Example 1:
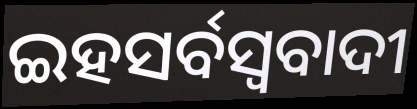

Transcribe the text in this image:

ଇହସର୍ବସ୍ୱବାଦୀ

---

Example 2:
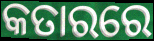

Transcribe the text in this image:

କତାରରେ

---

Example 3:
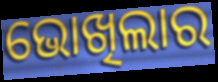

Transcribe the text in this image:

ଭୋଖିଲାର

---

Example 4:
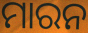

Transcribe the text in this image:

ମାରନ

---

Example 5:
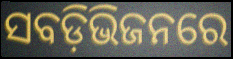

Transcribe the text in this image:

ସବଡ଼ିଭିଜନରେ